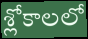
శ్లోకాలలో